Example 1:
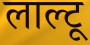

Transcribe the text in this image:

लाल्टू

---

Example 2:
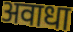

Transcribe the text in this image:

अवाधा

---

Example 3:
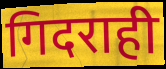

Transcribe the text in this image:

गिदराही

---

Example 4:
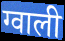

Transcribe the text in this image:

ग्वाली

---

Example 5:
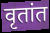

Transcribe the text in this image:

वृतांत